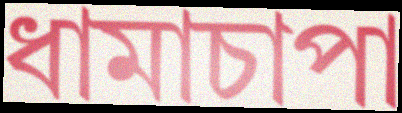
ধামাচাপা